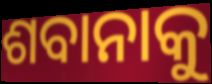
ଶବାନାକୁ